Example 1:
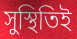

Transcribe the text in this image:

সুস্থিতিই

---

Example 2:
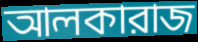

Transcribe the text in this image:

আলকারাজ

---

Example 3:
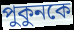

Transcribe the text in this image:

পুকুনকে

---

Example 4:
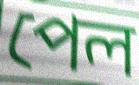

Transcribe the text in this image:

পেল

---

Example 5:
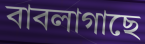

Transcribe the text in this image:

বাবলাগাছে